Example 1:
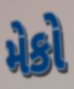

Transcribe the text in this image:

મેકો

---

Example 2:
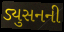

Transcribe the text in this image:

ડ્યુસનની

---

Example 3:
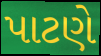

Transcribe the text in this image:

પાટણે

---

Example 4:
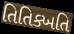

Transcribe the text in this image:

તિતિક્ખતિ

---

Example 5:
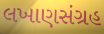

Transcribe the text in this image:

લખાણસંગ્રહ